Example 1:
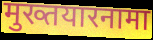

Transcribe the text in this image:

मुख्तयारनामा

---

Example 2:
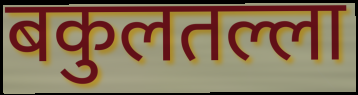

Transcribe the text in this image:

बकुलतल्ला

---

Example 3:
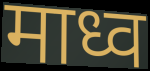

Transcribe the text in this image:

माध्व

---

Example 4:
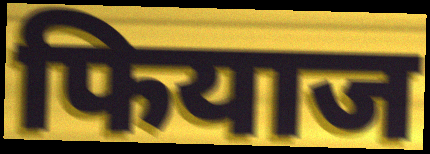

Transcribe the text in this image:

फियाज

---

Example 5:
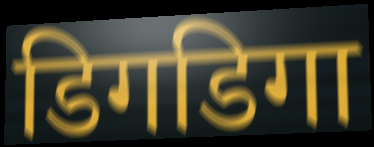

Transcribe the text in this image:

डिगडिगा